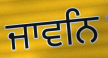
ਜਾਵਨਿ